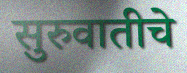
सुरुवातीचे